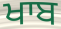
ਖਾਬ